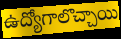
ఉద్యోగాలొచ్చాయి